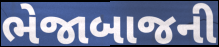
ભેજાબાજની